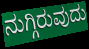
ನುಗ್ಗಿರುವುದು